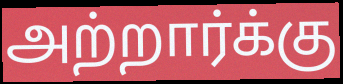
அற்றார்க்கு